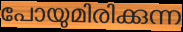
പോയുമിരിക്കുന്ന